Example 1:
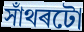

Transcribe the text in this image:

সাঁথৰটো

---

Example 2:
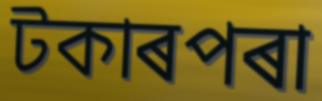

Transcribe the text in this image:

টকাৰপৰা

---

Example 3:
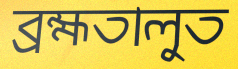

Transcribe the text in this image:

ব্ৰহ্মতালুত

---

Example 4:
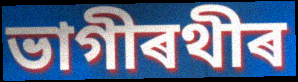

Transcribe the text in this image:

ভাগীৰথীৰ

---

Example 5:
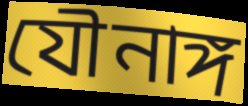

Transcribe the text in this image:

যৌনাঙ্গ